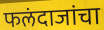
फलंदाजांचा